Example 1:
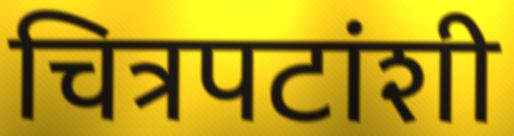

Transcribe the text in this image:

चित्रपटांशी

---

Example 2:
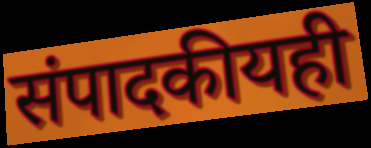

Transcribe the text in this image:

संपादकीयही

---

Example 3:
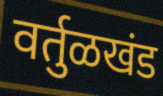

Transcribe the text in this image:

वर्तुळखंड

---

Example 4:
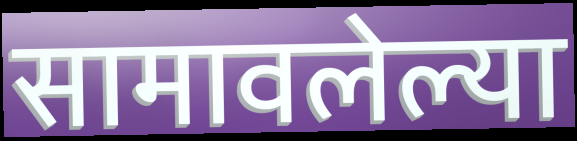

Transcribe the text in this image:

सामावलेल्या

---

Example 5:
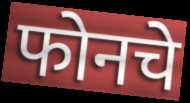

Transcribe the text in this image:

फोनचे